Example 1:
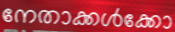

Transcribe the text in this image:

നേതാക്കൾക്കോ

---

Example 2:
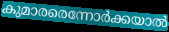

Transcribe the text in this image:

കുമാരരെന്നോർക്കയാൽ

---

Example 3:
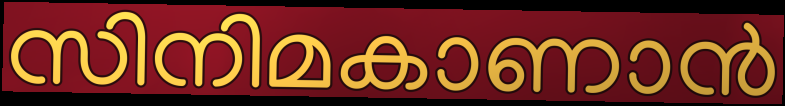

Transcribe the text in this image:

സിനിമകാണാൻ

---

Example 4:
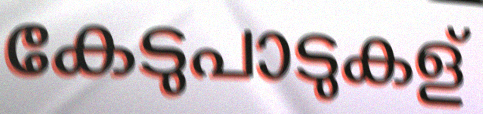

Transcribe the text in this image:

കേടുപാടുകള്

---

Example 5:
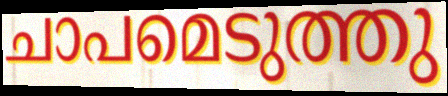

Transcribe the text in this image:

ചാപമെടുത്തു